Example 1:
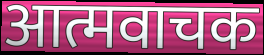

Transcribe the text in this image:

आत्मवाचक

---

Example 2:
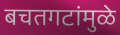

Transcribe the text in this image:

बचतगटांमुळे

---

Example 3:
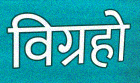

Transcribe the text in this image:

विग्रहो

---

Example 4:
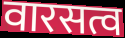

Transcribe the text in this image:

वारसत्व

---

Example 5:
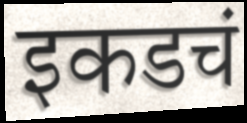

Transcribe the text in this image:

इकडचं